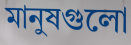
মানুষগুলো